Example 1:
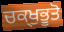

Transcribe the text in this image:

ਚਕ੍ਖੁਭੂਤੋ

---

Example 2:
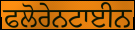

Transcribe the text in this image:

ਫਲੋਰੇਨਟਾਈਨ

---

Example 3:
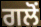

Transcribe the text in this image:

ਗਲੋਂ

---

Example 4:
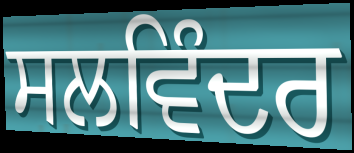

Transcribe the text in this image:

ਸਲਵਿੰਦਰ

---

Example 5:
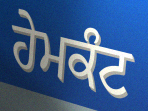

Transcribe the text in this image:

ਹੇਮਕੰਟ